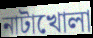
নাটাখোলা